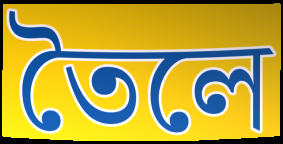
তৈলে